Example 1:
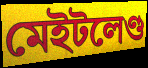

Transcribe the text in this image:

মেইটলেণ্ড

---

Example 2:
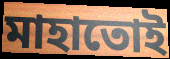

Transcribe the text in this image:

মাহাতোই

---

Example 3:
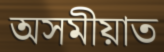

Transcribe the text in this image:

অসমীয়াত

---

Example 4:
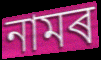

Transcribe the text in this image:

নামৰ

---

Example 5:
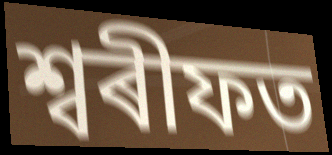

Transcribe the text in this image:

শ্বৰীফত